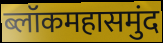
ब्लॉकमहासमुंद